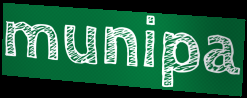
munipa